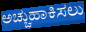
ಅಚ್ಚುಹಾಕಿಸಲು